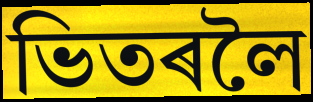
ভিতৰলৈ